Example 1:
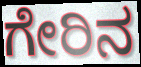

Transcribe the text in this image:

ಗೇರಿನ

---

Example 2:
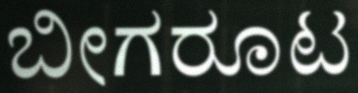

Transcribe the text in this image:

ಬೀಗರೂಟ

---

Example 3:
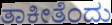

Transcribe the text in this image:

ತಾಕೀತೆಂದು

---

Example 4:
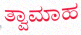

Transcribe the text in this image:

ತ್ವಾಮಾಹ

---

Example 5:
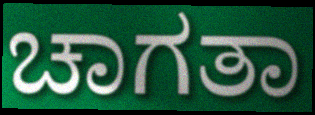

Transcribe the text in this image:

ಚಾಗತಾ